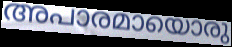
അപാരമായൊരു